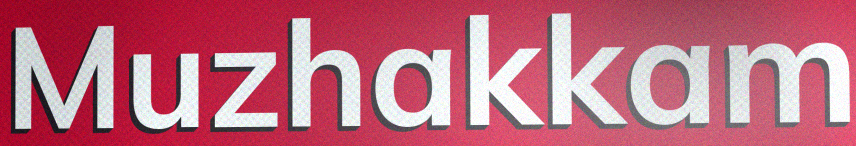
Muzhakkam